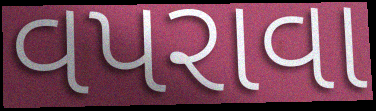
વપરાવા